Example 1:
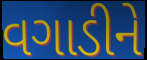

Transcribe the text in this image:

વગાડીને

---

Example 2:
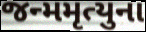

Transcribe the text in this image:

જન્મમૃત્યુના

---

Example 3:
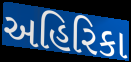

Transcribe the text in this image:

અહિરિકા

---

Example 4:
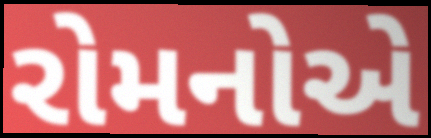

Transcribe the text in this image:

રોમનોએ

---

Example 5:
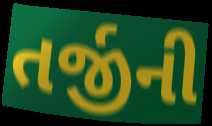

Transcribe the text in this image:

તર્જીની